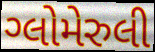
ગ્લોમેરુલી